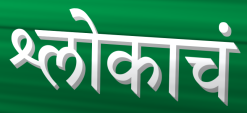
श्लोकाचं